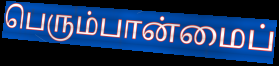
பெரும்பான்மைப்